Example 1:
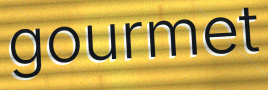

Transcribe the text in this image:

gourmet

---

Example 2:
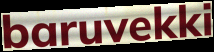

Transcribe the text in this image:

baruvekki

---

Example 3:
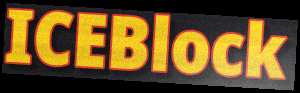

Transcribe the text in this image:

ICEBlock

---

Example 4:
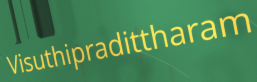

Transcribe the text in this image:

Visuthipradittharam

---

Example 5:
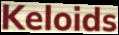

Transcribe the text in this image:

Keloids